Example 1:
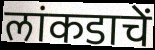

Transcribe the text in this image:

लांकडाचें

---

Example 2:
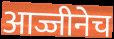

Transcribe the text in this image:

आज्जीनेच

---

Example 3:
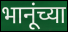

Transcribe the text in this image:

भानूंच्या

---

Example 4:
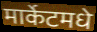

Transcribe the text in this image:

मार्केटमधे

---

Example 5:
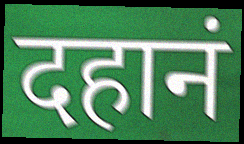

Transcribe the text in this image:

दहानं